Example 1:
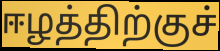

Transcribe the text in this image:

ஈழத்திற்குச்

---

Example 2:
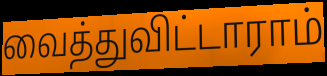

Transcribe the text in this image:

வைத்துவிட்டாராம்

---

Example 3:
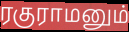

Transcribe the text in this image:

ரகுராமனும்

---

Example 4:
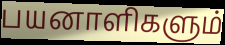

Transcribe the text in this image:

பயனாளிகளும்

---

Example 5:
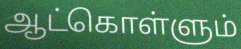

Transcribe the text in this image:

ஆட்கொள்ளும்